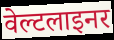
वेल्टलाइनर